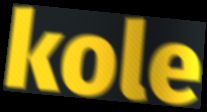
kole